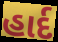
હાર્દ